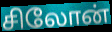
சிலோன்